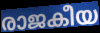
രാജകീയ